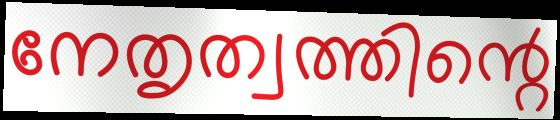
നേതൃത്വത്തിന്റെ